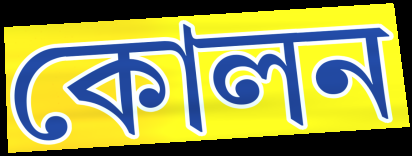
কোলন